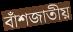
বাঁশজাতীয়